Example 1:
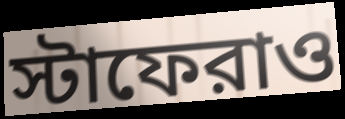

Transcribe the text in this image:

স্টাফেরাও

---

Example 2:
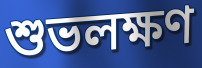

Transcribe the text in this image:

শুভলক্ষণ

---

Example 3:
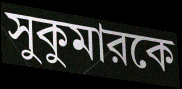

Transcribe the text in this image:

সুকুমারকে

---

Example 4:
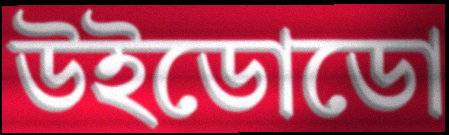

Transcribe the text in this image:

উইডোডো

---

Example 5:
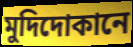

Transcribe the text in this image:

মুদিদোকানে